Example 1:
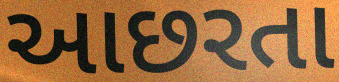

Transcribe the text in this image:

આછરતા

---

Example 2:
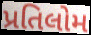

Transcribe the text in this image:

પ્રતિલોમ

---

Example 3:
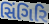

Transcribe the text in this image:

સિંગિરિ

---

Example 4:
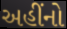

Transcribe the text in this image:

અહીંનો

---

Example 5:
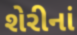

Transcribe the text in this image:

શેરીનાં